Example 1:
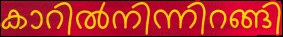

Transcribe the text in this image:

കാറിൽനിന്നിറങ്ങി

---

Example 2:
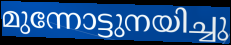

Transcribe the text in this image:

മുന്നോട്ടുനയിച്ചു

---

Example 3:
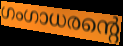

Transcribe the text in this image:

ഗംഗാധരന്റെ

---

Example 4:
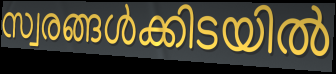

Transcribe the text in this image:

സ്വരങ്ങൾക്കിടയിൽ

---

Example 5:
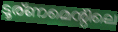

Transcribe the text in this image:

ടൂര്ണമെന്റിലെ